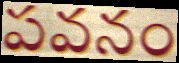
పవనం